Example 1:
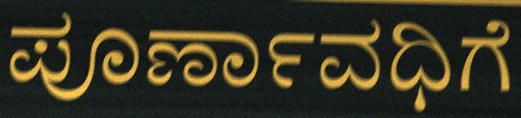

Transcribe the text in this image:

ಪೂರ್ಣಾವಧಿಗೆ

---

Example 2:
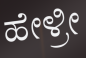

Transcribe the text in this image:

ಹೇಳ್ರೀ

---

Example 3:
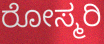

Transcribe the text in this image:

ರೋಸ್ಮರಿ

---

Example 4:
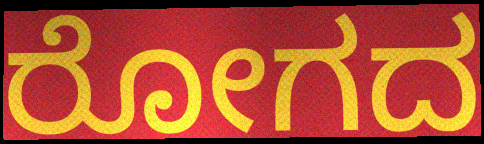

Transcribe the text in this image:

ರೋಗದ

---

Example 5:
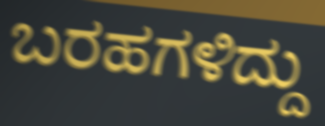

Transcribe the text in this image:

ಬರಹಗಳಿದ್ದು